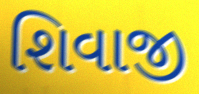
શિવાજી